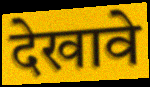
देखावे